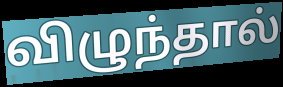
விழுந்தால்